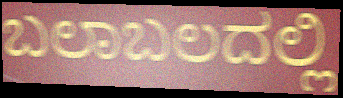
ಬಲಾಬಲದಲ್ಲಿ